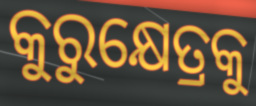
କୁରୁକ୍ଷେତ୍ରକୁ